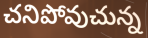
చనిపోవుచున్న